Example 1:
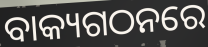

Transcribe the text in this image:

ବାକ୍ୟଗଠନରେ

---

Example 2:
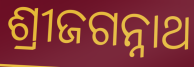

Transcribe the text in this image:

ଶ୍ରୀଜଗନ୍ନାଥ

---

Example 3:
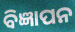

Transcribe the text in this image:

ବିଜ୍ଞାପନ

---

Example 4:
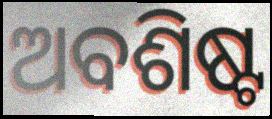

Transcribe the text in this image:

ଅବଶିଷ୍ଟ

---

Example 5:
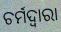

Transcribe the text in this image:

ଚର୍ମଦ୍ଵାରା